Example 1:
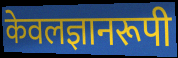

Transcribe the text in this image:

केवलज्ञानरूपी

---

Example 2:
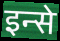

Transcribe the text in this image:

इन्से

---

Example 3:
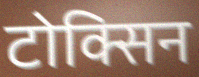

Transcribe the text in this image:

टोक्सिन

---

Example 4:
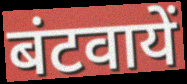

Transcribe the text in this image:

बंटवायें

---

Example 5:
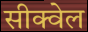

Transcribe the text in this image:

सीक्वेल